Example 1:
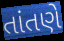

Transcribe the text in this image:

તાંતણે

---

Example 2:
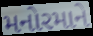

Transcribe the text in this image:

મનોરમાને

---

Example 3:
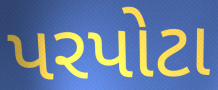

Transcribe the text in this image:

પરપોટા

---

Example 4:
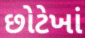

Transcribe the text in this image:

છોટેખાં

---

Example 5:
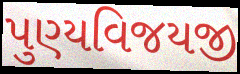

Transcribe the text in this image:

પુણ્યવિજયજી